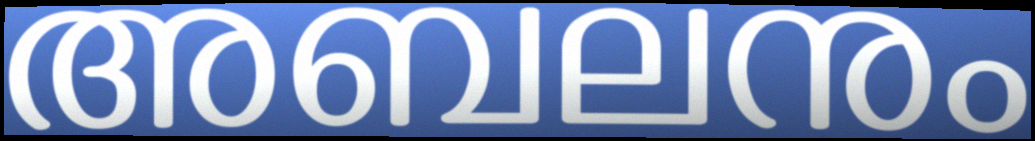
അബലനും